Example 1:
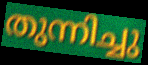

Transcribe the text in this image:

തുന്നിച്ചു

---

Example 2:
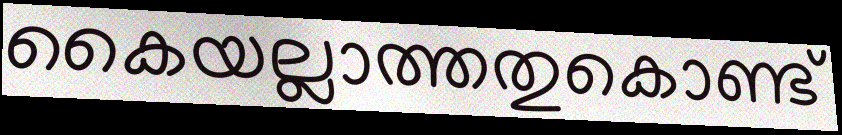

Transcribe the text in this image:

കൈയല്ലാത്തതുകൊണ്ട്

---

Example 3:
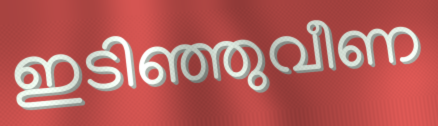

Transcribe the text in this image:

ഇടിഞ്ഞുവീണ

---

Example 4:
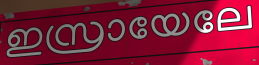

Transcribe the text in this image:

ഇസ്രായേലേ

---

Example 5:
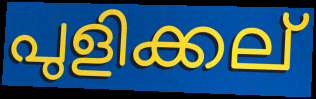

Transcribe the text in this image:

പുളിക്കല്